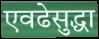
एवढेसुद्धा